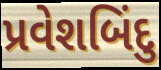
પ્રવેશબિંદુ